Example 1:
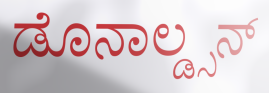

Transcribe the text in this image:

ಡೊನಾಲ್ಡ್ಸನ್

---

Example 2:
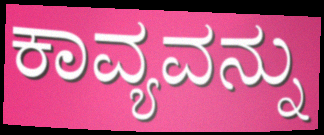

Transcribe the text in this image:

ಕಾವ್ಯವನ್ನು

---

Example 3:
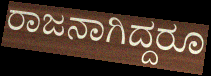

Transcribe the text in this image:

ರಾಜನಾಗಿದ್ದರೂ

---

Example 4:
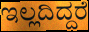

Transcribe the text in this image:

ಇಲ್ಲದಿದ್ದರೆ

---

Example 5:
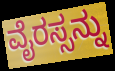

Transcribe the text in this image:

ವೈರಸ್ಸನ್ನು